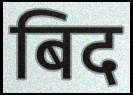
बिद